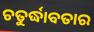
ଚତୁର୍ଦ୍ଧାବତାର